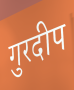
गुरदीप